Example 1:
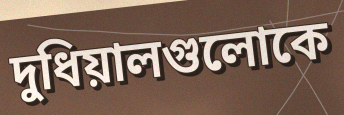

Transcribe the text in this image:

দুধিয়ালগুলোকে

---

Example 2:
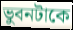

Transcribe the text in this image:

ভুবনটাকে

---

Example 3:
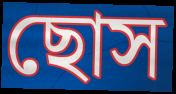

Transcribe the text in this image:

ছোস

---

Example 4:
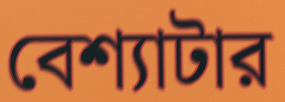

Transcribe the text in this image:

বেশ্যাটার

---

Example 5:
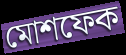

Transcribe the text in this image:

মোশফেক